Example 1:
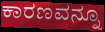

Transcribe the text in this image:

ಕಾರಣವನ್ನೂ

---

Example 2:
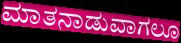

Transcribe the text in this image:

ಮಾತನಾಡುವಾಗಲೂ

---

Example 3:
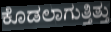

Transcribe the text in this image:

ಕೊಡಲಾಗುತ್ತಿತ್ತು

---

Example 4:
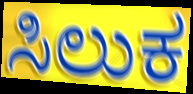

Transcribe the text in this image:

ಸಿಲುಕ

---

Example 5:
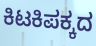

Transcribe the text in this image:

ಕಿಟಕಿಪಕ್ಕದ